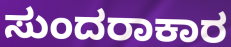
ಸುಂದರಾಕಾರ